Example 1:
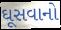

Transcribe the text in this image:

ઘૂસવાનો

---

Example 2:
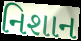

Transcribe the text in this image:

નિશાન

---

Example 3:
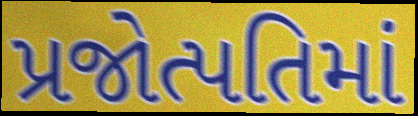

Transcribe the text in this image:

પ્રજોત્પતિમાં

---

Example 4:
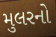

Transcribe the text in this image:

મુલરનો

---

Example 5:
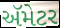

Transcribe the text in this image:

ઍમેટર